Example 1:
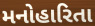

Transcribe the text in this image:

મનોહારિતા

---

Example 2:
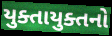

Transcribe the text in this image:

યુક્તાયુક્તનો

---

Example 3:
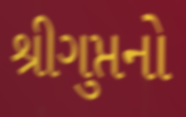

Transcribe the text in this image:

શ્રીગુપ્તનો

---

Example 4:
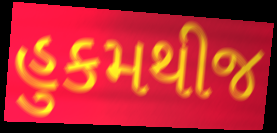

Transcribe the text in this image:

હુકમથીજ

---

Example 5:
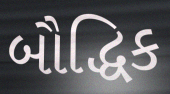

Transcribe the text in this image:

બૌદ્ધિક